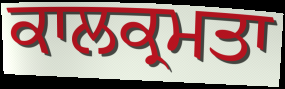
ਕਾਲਕ੍ਰਮਤਾ